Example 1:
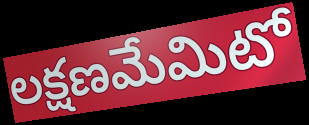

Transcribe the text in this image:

లక్షణమేమిటో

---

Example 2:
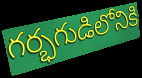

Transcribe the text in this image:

గర్భగుడిలోనికి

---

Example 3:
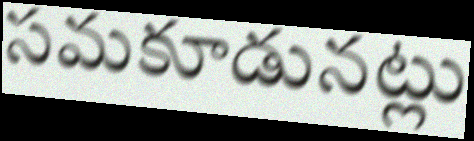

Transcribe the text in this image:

సమకూడునట్లు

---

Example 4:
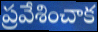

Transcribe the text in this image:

ప్రవేశించాక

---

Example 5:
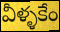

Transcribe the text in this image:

వీళ్ళకేం